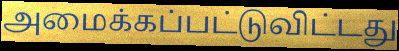
அமைக்கப்பட்டுவிட்டது